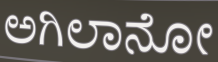
ಅಗಿಲಾನೋ